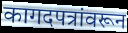
कागदपत्रांवरून